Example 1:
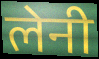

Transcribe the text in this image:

लेनी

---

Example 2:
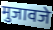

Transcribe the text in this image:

मुजावजे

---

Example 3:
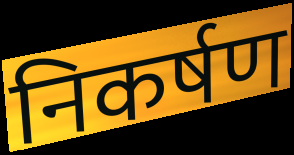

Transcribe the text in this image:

निकर्षण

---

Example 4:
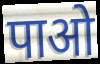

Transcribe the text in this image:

पाओ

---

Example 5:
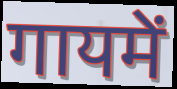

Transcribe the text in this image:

गायमें